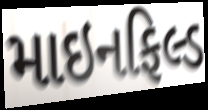
માઇનફિલ્ડ